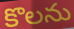
కొలను